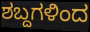
ಶಬ್ದಗಳಿಂದ